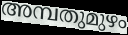
അമ്പതുമുഴം